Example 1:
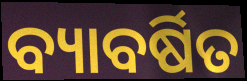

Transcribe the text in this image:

ବ୍ୟାବର୍ଷିତ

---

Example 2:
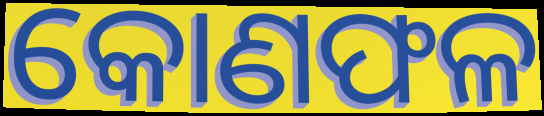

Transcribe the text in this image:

କୋଣଫଳ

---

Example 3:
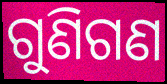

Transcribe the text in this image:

ଗୁଣିଗଣ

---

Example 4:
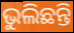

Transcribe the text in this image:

ଭୁଲିଛନ୍ତି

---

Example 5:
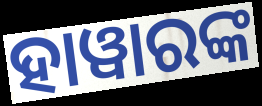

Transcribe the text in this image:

ହାୱାରଙ୍କ